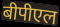
बीपीएल